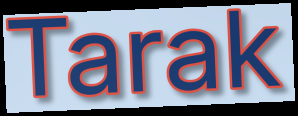
Tarak